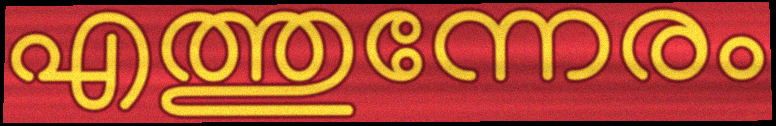
എത്തുന്നേരം